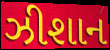
ઝીશાન